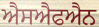
ਐਸਐਫਐਨ